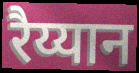
रैय्यान